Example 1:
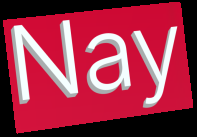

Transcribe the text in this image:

Nay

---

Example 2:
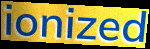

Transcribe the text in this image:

ionized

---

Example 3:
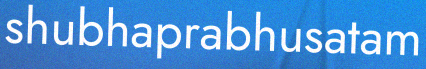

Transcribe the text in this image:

shubhaprabhusatam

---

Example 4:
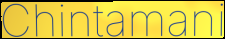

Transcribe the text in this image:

Chintamani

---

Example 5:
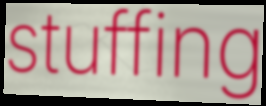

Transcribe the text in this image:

stuffing